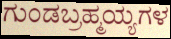
ಗುಂಡಬ್ರಹ್ಮಯ್ಯಗಳ